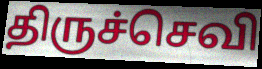
திருச்செவி